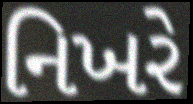
નિખરે